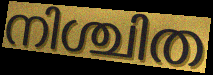
നിശ്ചിത